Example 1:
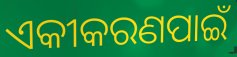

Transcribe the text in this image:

ଏକୀକରଣପାଇଁ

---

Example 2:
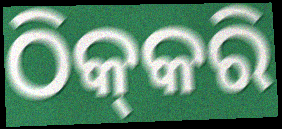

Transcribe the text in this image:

ଠିକ୍‍କରି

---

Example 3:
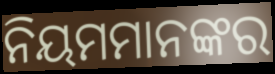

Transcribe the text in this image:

ନିୟମମାନଙ୍କର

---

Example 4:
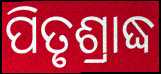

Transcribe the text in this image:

ପିତୃଶ୍ରାଦ୍ଧ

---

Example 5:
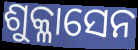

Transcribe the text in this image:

ଶୁକ୍ଳାସେନ